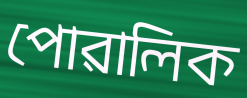
পোৱালিক